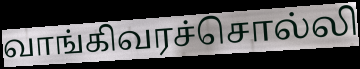
வாங்கிவரச்சொல்லி